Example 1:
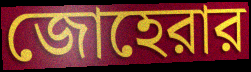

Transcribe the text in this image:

জোহেরার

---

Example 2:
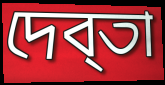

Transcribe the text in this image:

দেব্‌তা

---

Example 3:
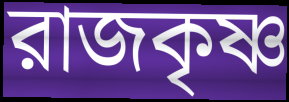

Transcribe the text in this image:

রাজকৃষ্ণ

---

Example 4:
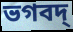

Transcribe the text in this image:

ভগবদ্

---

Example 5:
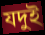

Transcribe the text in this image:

যদুই